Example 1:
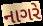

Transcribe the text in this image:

નાગરે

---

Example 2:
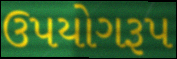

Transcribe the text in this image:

ઉપયોગરૂપ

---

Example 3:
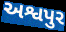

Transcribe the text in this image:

અશ્વપુર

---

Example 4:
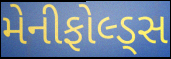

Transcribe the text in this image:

મેનીફોલ્ડ્સ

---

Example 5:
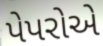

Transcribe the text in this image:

પેપરોએ